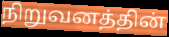
நிறுவனத்தின்